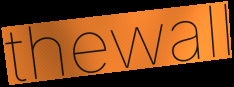
thewall